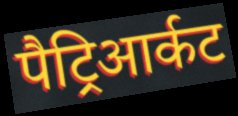
पैट्रिआर्कट